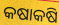
କଷାକଷି